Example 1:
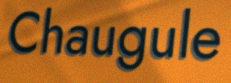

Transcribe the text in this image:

Chaugule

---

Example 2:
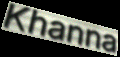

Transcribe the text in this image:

Khanna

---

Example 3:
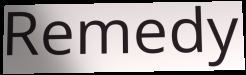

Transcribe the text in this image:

Remedy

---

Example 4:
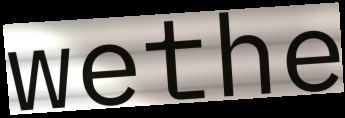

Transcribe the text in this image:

wethe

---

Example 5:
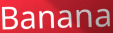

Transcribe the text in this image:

Banana